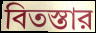
বিতস্তার